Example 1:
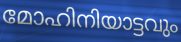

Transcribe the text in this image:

മോഹിനിയാട്ടവും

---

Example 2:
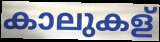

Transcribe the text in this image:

കാലുകള്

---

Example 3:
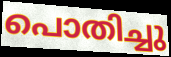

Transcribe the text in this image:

പൊതിച്ചു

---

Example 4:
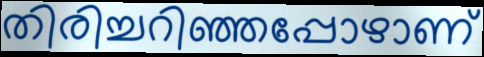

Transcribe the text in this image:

തിരിച്ചറിഞ്ഞപ്പോഴാണ്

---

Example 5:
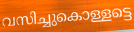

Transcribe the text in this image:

വസിച്ചുകൊള്ളട്ടെ